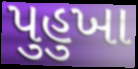
પુહુખા